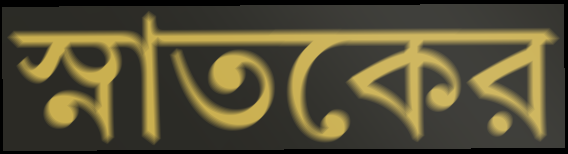
স্নাতকের